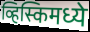
व्हिस्किमध्ये